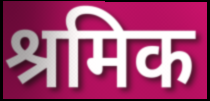
श्रमिक